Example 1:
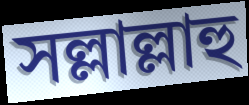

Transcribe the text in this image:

সল্লাল্লাহু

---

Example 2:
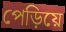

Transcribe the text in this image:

পেড়িয়ে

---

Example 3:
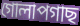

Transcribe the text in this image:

গোলাপগাছ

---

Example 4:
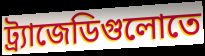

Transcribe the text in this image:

ট্র্যাজেডিগুলোতে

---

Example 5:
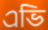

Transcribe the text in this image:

এভি